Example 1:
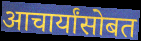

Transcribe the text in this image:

आचार्यांसोबत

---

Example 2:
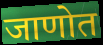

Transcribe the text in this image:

जाणोत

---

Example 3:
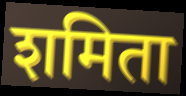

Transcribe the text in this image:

शमिता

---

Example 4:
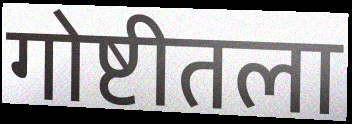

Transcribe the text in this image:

गोष्टीतला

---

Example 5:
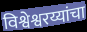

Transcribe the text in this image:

विश्वेश्वरय्यांचा